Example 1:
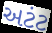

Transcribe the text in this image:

અટંટ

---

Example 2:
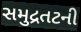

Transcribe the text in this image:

સમુદ્રતટની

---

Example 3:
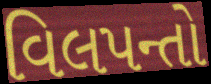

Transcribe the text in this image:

વિલપન્તો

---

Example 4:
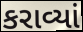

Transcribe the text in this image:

કરાવ્યાં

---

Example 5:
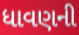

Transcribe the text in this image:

ધાવણની